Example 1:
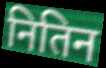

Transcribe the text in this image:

नितिन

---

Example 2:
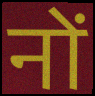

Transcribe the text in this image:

नों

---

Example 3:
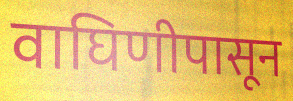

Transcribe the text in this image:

वाघिणीपासून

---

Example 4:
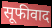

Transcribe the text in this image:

सूफीवाद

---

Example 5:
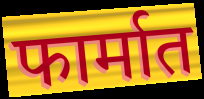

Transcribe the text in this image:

फार्मात